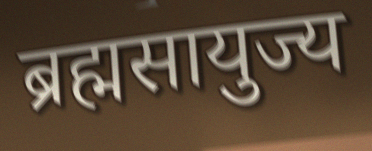
ब्रह्मसायुज्य